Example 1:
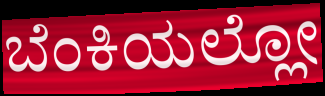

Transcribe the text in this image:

ಬೆಂಕಿಯಲ್ಲೋ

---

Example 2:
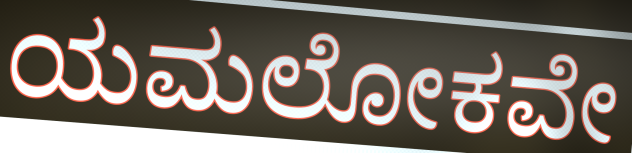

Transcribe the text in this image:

ಯಮಲೋಕವೇ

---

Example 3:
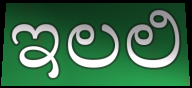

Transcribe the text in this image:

ಇಲಲಿ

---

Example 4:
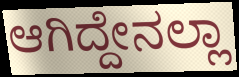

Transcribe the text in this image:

ಆಗಿದ್ದೇನಲ್ಲಾ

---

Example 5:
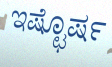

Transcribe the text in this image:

ಇಷ್ಟೊರ್ಷ